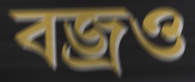
বজ্রও